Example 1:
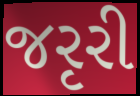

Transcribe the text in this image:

જરૃરી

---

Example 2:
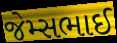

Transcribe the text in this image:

જેમ્સભાઈ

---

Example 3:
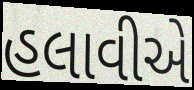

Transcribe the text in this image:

હલાવીએ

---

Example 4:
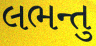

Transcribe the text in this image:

લભન્તુ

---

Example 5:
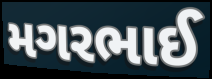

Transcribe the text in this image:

મગરભાઈ